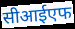
सीआईएफ